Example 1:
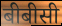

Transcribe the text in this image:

बीबीसी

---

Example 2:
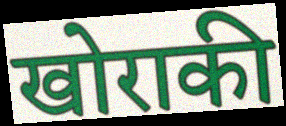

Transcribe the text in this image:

खोराकी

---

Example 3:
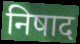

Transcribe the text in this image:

निषाद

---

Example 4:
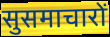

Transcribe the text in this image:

सुसमाचारों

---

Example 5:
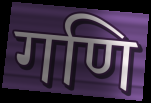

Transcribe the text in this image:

गणि